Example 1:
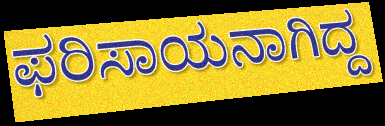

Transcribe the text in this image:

ಫರಿಸಾಯನಾಗಿದ್ದ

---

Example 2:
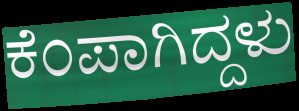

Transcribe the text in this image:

ಕೆಂಪಾಗಿದ್ದಳು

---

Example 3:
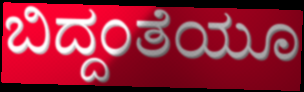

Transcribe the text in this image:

ಬಿದ್ದಂತೆಯೂ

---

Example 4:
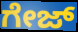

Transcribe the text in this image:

ಗೇಜ್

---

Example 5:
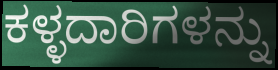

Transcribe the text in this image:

ಕಳ್ಳದಾರಿಗಳನ್ನು